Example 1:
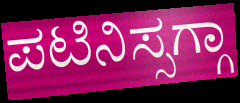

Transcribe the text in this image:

ಪಟಿನಿಸ್ಸಗ್ಗಾ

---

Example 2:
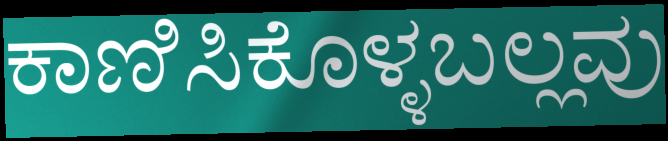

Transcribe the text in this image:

ಕಾಣಿಸಿಕೊಳ್ಳಬಲ್ಲವು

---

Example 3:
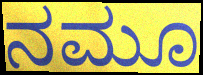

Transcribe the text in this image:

ನಮೂ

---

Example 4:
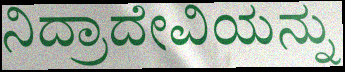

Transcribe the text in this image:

ನಿದ್ರಾದೇವಿಯನ್ನು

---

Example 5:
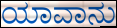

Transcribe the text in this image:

ಯಾವಾನು